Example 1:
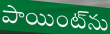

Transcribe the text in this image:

పాయింట్‌ను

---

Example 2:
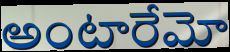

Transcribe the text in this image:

అంటారేమో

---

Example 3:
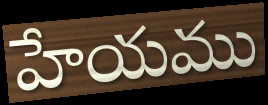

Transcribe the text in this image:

హేయము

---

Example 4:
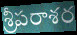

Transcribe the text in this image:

శ్రీపరాశర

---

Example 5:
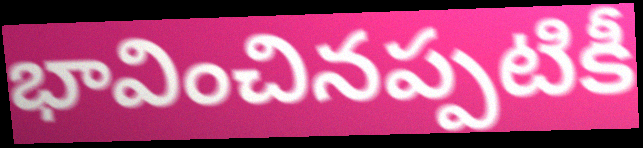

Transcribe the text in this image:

భావించినప్పటికీ